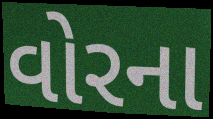
વોરના